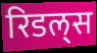
रिडल्स